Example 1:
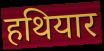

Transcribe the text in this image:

हथियार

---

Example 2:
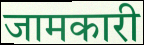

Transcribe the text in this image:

जामकारी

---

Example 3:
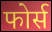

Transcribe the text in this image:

फोर्स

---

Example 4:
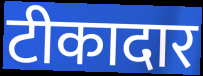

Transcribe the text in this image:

टीकादार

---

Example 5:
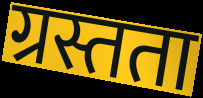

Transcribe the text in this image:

ग्रस्तता